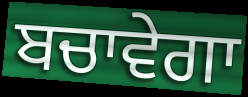
ਬਚਾਵੇਗਾ